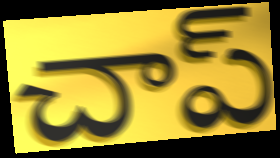
చాప్